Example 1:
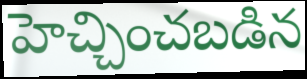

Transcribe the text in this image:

హెచ్చించబడిన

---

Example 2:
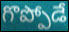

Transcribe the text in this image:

గొప్పోడే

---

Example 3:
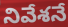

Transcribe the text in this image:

నివేశనే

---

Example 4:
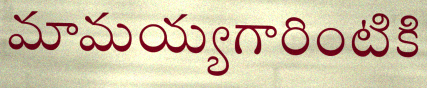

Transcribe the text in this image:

మామయ్యగారింటికి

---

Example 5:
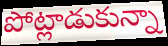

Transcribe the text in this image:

పోట్లాడుకున్నా